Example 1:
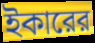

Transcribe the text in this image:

ইকারের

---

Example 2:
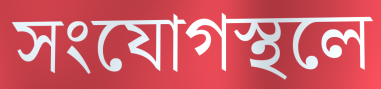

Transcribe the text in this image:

সংযোগস্থলে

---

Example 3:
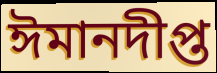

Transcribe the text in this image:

ঈমানদীপ্ত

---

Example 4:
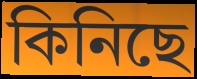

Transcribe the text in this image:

কিনিছে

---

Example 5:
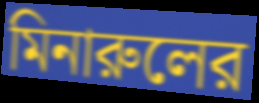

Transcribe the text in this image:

মিনারুলের